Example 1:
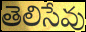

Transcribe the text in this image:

తెలిసేవు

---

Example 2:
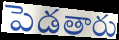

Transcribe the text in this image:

పెడతారు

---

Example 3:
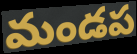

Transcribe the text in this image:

మండప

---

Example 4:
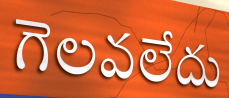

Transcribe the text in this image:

గెలవలేదు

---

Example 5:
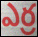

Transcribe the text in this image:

ఎర్ర